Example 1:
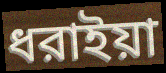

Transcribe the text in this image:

ধরাইয়া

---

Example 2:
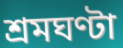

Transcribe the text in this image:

শ্রমঘণ্টা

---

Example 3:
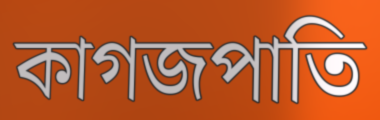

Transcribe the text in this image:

কাগজপাতি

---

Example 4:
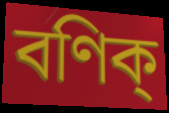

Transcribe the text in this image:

বণিক্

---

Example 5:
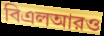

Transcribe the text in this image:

বিএলআরও